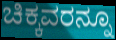
ಚಿಕ್ಕವರನ್ನೂ